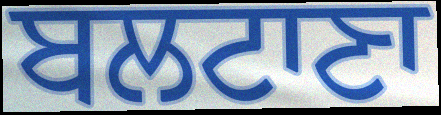
ਬਲਟਾਣਾ